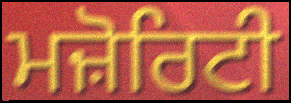
ਮਜ਼ੋਰਿਟੀ